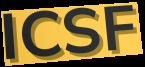
ICSF